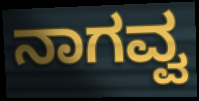
ನಾಗವ್ವ